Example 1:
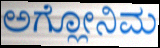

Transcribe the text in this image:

ಅಗ್ಲೋನಿಮ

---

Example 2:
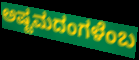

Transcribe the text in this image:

ಅಷ್ಟಮದಂಗಳೆಂಬ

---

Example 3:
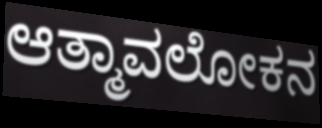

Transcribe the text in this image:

ಆತ್ಮಾವಲೋಕನ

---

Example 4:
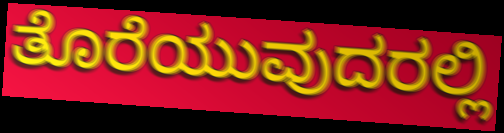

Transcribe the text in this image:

ತೊರೆಯುವುದರಲ್ಲಿ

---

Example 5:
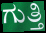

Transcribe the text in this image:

ಗುತ್ತಿ